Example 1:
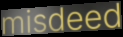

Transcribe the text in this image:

misdeed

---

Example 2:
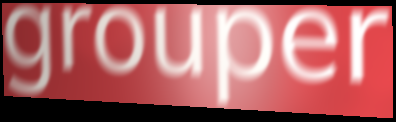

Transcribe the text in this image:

grouper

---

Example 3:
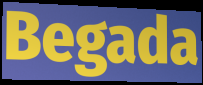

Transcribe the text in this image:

Begada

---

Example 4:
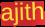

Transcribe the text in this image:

ajith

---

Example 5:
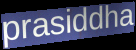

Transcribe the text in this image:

prasiddha